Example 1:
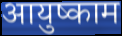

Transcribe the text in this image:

आयुष्काम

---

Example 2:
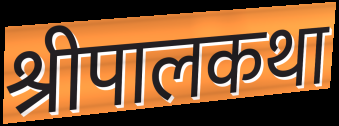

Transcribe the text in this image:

श्रीपालकथा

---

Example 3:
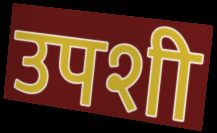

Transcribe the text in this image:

उपशी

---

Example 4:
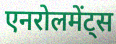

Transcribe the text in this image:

एनरोलमेंट्स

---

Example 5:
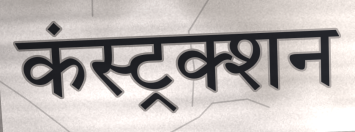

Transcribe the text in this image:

कंस्‍ट्रक्‍शन